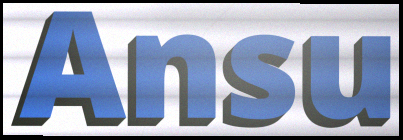
Ansu